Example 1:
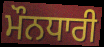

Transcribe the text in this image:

ਮੌਨਧਾਰੀ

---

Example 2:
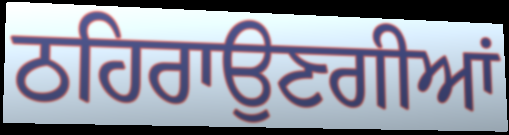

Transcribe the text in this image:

ਠਹਿਰਾਉਣਗੀਆਂ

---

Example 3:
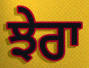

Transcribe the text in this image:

ਝੇਰਾ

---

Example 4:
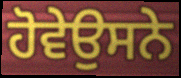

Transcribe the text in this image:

ਹੋਵੇਉਸਨੇ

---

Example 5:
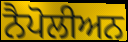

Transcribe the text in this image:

ਨੈਪੋਲੀਅਨ